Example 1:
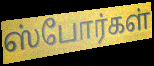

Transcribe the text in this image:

ஸ்போர்கள்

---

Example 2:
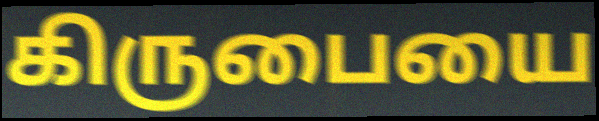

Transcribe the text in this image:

கிருபையை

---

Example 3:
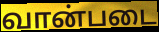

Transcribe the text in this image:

வான்படை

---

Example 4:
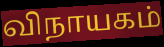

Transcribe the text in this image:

விநாயகம்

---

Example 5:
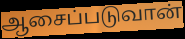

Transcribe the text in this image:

ஆசைப்படுவான்